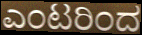
ಎಂಟರಿಂದ